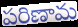
పరిణామ